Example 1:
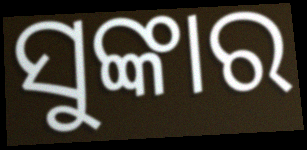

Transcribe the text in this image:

ସୁଙ୍କାର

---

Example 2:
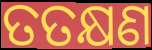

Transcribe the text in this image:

ତତକ୍ଷଣ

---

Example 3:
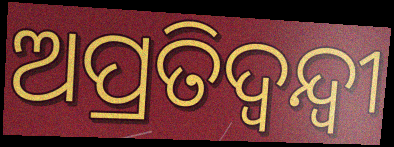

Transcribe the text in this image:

ଅପ୍ରତିଦ୍ବନ୍ଦ୍ବୀ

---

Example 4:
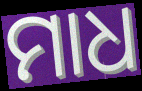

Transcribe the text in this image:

ମାଧ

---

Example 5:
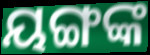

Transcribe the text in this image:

ୟଙ୍ଗଙ୍କ